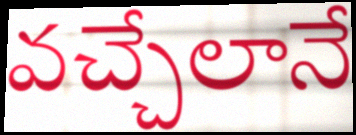
వచ్చేలానే